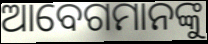
ଆବେଗମାନଙ୍କୁ